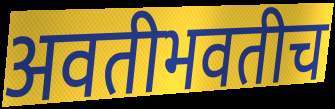
अवतीभवतीच